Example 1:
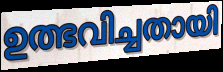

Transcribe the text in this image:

ഉത്ഭവിച്ചതായി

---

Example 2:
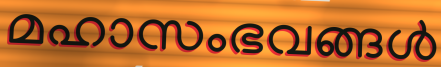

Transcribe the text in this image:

മഹാസംഭവങ്ങൾ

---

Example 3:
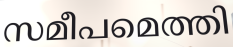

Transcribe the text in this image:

സമീപമെത്തി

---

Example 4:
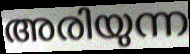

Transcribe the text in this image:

അരിയുന്ന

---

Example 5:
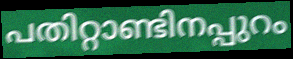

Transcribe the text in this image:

പതിറ്റാണ്ടിനപ്പുറം